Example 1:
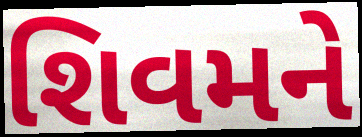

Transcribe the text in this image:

શિવમને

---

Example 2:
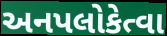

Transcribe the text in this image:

અનપલોકેત્વા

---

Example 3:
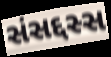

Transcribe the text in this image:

સંસદ્દસ્સ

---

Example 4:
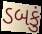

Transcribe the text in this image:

ડબકું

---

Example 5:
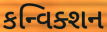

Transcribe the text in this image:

કન્વિક્શન